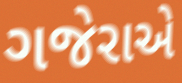
ગજેરાએ